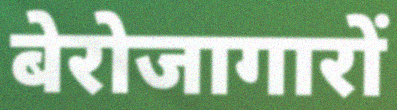
बेरोजागारों